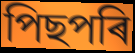
পিছপৰি